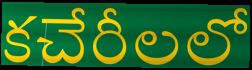
కచేరీలలో